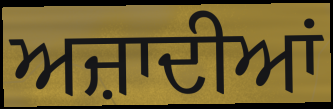
ਅਜ਼ਾਦੀਆਂ